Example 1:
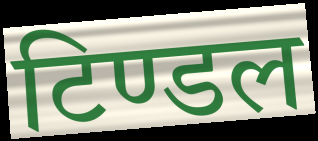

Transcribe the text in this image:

टिण्डल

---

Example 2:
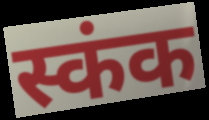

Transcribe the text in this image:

स्कंक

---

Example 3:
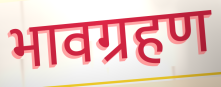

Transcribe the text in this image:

भावग्रहण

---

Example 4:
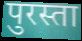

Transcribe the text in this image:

पुरस्ता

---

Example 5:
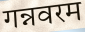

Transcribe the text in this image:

गन्नवरम